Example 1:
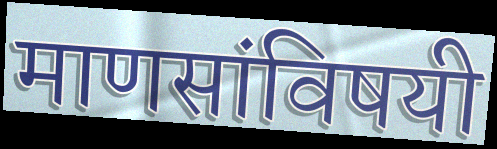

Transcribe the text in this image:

माणसांविषयी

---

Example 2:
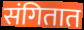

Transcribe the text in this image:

संगितात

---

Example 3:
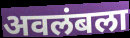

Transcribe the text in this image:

अवलंबला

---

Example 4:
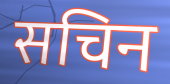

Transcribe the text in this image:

सचिन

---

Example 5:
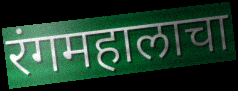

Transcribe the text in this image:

रंगमहालाचा